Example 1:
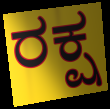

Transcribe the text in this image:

ರಕ್ಷ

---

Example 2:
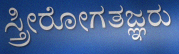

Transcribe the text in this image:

ಸ್ತ್ರೀರೋಗತಜ್ಞರು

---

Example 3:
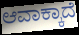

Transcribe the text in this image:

ಆವಾಕ್ಕಾದೆ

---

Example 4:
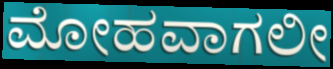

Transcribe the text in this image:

ಮೋಹವಾಗಲೀ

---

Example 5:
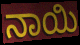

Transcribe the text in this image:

ನಾಯಿ